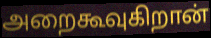
அறைகூவுகிறான்